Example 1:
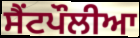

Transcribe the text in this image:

ਸੈਂਟਪੌਲੀਆ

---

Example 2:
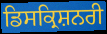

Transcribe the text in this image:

ਡਿਸਕ੍ਰਿਸ਼ਨਰੀ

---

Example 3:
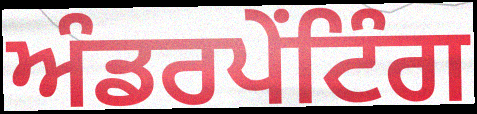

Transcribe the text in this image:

ਅੰਡਰਪੇਂਟਿੰਗ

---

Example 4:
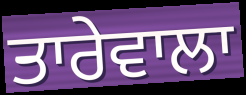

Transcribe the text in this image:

ਤਾਰੇਵਾਲਾ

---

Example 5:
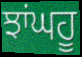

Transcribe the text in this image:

ਝਾਂਘਹੂ